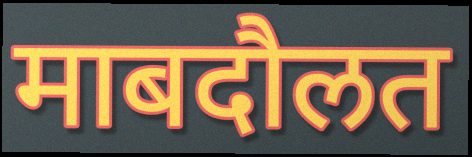
माबदौलत